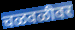
चळवळीवर